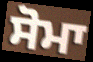
ਸੋਮਾ